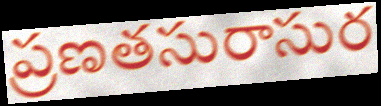
ప్రణతసురాసుర